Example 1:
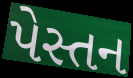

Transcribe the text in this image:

પેસ્તન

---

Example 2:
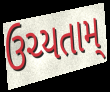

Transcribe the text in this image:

ઉચ્યતામ્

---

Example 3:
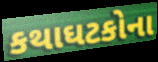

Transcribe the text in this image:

કથાઘટકોના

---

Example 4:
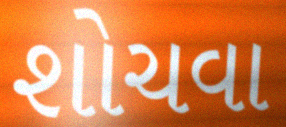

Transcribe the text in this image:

શોચવા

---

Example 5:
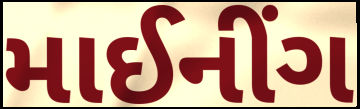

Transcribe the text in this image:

માઈનીંગ